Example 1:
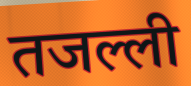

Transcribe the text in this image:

तजल्ली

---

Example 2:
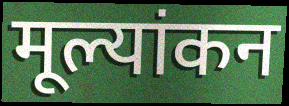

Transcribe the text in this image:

मूल्यांकन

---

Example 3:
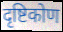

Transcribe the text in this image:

दृष्टिकोण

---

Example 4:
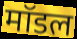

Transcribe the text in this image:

मॉडल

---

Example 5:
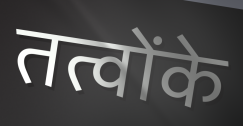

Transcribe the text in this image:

तत्वोंके